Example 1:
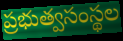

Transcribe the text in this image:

ప్రభుత్వసంస్థల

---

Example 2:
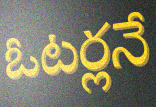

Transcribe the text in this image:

ఓటర్లనే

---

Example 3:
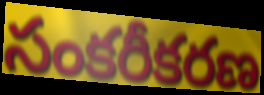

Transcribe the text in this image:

సంకరీకరణ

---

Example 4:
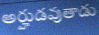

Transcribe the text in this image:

అర్హుడవుతాడు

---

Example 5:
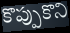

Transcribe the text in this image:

కొప్పుకొని